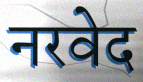
नरवेद